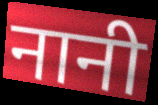
नानी